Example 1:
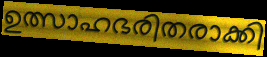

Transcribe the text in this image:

ഉത്സാഹഭരിതരാക്കി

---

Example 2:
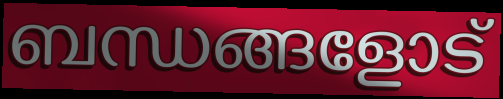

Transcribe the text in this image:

ബന്ധങ്ങളോട്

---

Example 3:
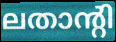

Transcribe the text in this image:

ലതാന്റി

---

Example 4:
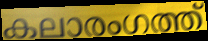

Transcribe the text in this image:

കലാരംഗത്ത്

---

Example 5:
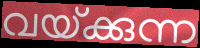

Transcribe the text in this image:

വയ്‌ക്കുന്ന